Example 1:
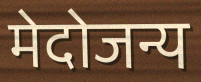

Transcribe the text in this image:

मेदोजन्य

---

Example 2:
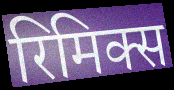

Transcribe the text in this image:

रिमिक्स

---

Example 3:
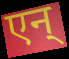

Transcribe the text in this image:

एन्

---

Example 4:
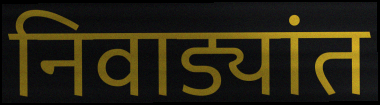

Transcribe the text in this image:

निवाड्यांत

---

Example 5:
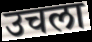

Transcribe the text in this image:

उचला